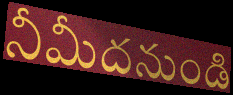
నీమీదనుండి